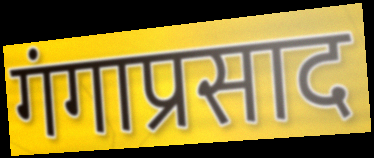
गंगाप्रसाद